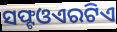
ସଫ୍ଟଓଏରଟିଏ